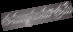
తమ్మునుమాత్రమే